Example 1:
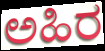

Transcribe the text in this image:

ಅಹಿರ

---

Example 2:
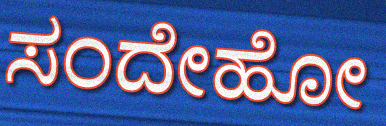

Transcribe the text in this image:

ಸಂದೇಹೋ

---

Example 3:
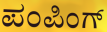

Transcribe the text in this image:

ಪಂಪಿಂಗ್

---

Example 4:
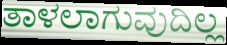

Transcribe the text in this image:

ತಾಳಲಾಗುವುದಿಲ್ಲ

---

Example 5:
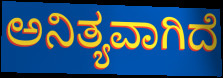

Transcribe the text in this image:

ಅನಿತ್ಯವಾಗಿದೆ